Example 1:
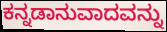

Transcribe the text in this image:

ಕನ್ನಡಾನುವಾದವನ್ನು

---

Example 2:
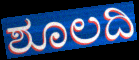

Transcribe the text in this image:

ಶೂಲದಿ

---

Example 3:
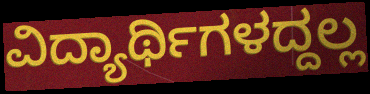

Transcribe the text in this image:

ವಿದ್ಯಾರ್ಥಿಗಳದ್ದಲ್ಲ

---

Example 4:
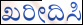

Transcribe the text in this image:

ಖರೀದಿಸಿ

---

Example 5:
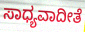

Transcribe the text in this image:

ಸಾಧ್ಯವಾದೀತೆ